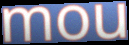
mou